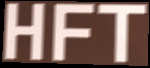
HFT